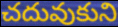
చదువుకుని